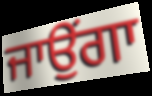
ਜਾਉਂਗਾ